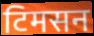
टिमसन